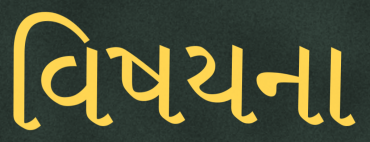
વિષયના